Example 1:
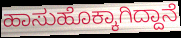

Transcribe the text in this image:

ಹಾಸುಹೊಕ್ಕಾಗಿದ್ದಾನೆ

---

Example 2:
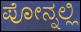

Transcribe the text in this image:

ಪೋನ್ನಲ್ಲಿ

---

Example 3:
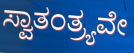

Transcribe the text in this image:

ಸ್ವಾತಂತ್ರ್ಯವೇ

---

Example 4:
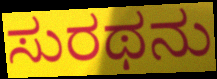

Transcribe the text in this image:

ಸುರಥನು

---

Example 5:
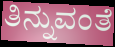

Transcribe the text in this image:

ತಿನ್ನುವಂತೆ